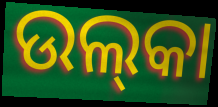
ଉଲ୍‍କା